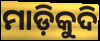
ମାଡ଼ିକୁଦି